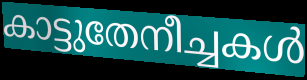
കാട്ടുതേനീച്ചകൾ